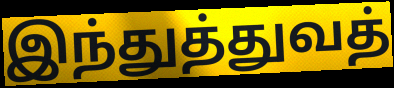
இந்துத்துவத்